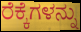
ರೆಕ್ಕೆಗಳನ್ನು